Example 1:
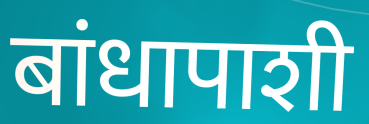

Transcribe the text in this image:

बांधापाशी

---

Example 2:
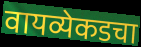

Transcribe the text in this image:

वायव्येकडचा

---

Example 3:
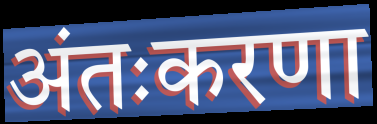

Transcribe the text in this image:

अंतःकरणा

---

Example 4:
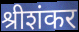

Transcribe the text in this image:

श्रीशंकर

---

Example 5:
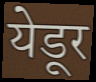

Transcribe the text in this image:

येडूर